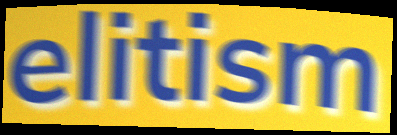
elitism